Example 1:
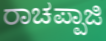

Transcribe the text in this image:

ರಾಚಪ್ಪಾಜಿ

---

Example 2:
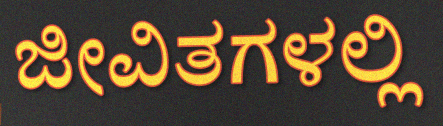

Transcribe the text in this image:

ಜೀವಿತಗಳಲ್ಲಿ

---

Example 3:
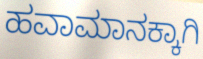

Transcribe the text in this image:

ಹವಾಮಾನಕ್ಕಾಗಿ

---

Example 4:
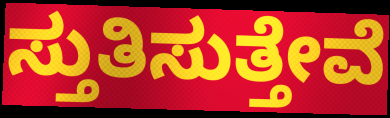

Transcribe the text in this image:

ಸ್ತುತಿಸುತ್ತೇವೆ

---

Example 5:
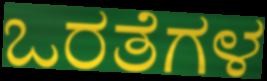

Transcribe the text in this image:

ಒರತೆಗಳ